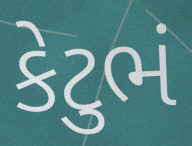
કેટુભં